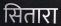
सितारा